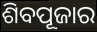
ଶିବପୂଜାର